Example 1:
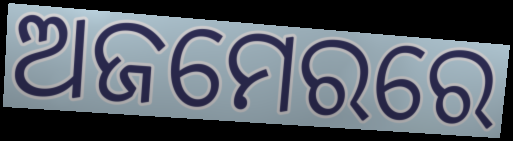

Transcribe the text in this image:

ଅଜମେରରେ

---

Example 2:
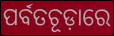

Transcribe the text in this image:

ପର୍ବତଚୂଡ଼ାରେ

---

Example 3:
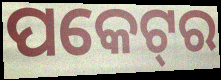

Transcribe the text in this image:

ପକେଟ୍‌ର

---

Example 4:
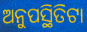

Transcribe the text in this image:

ଅନୁପସ୍ଥିତିଟା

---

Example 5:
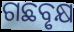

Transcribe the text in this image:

ଗଛବୃକ୍ଷ